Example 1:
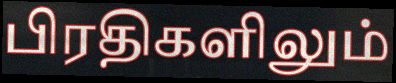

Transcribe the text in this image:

பிரதிகளிலும்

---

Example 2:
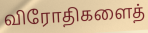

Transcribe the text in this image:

விரோதிகளைத்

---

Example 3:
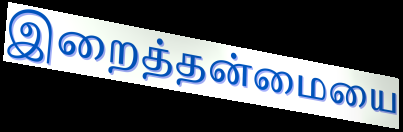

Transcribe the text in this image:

இறைத்தன்மையை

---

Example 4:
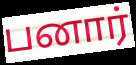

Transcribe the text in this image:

பனார்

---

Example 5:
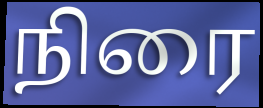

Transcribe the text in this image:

நிரை